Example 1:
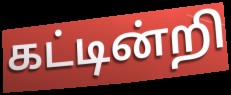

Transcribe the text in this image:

கட்டின்றி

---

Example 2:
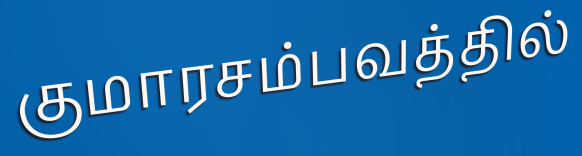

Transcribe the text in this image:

குமாரசம்பவத்தில்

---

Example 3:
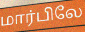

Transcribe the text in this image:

மார்பிலே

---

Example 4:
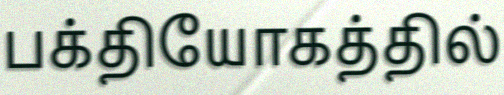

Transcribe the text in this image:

பக்தியோகத்தில்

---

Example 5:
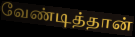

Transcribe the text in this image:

வேண்டித்தான்